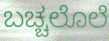
ಬಚ್ಚಲೊಲೆ